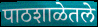
पाठशाळेतले